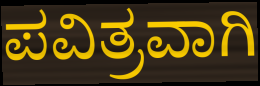
ಪವಿತ್ರವಾಗಿ